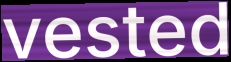
vested